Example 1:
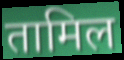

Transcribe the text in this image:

तामिल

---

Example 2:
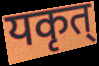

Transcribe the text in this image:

यकृत्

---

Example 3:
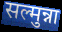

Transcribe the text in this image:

सल्मुन्ना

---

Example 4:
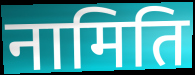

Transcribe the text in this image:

नामिति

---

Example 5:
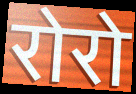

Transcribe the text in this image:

रोरो